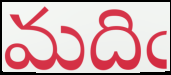
మదిఁ